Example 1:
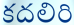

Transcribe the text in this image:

కదలిరి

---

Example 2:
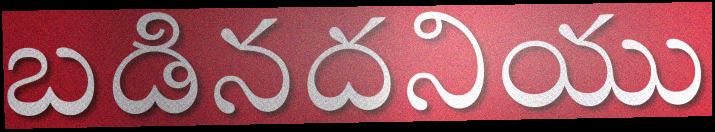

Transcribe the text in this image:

బడినదనియు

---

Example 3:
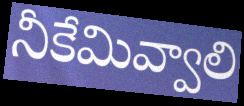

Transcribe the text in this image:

నీకేమివ్వాలి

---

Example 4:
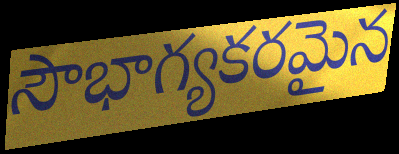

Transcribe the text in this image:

సౌభాగ్యకరమైన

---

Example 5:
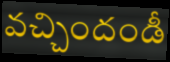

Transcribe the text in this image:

వచ్చిందండీ